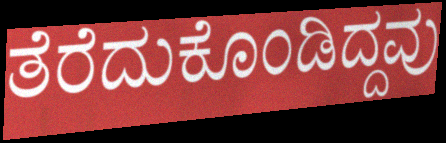
ತೆರೆದುಕೊಂಡಿದ್ದವು